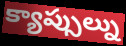
క్యాప్సుల్ను